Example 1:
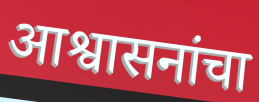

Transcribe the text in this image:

आश्वासनांचा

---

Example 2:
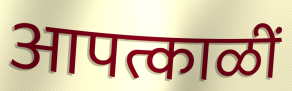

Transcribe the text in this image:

आपत्काळीं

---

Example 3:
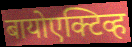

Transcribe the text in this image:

बायोएक्टिव्ह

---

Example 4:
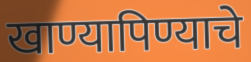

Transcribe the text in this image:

खाण्यापिण्याचे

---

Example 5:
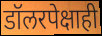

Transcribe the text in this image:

डॉलरपेक्षाही